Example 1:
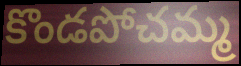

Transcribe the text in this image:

కొండపోచమ్మ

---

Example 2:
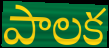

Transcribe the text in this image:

పాలక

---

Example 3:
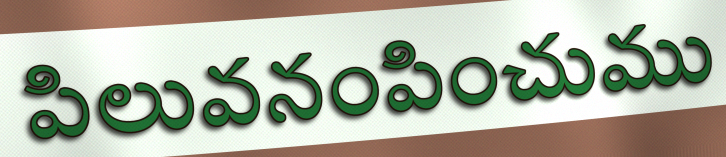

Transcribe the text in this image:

పిలువనంపించుము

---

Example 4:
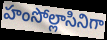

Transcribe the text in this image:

హంసోల్లాసినిగా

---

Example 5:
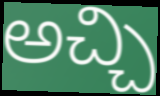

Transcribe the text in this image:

అచ్చి